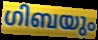
ഗിബയും